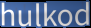
hulkod